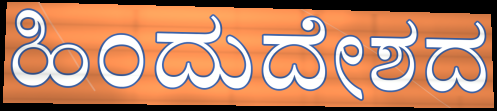
ಹಿಂದುದೇಶದ